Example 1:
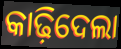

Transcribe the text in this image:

କାଢ଼ିଦେଲା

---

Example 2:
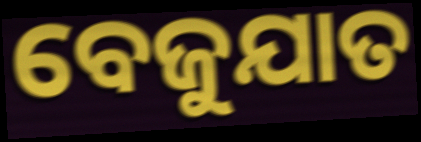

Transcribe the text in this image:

ବେଜୁଯାତ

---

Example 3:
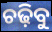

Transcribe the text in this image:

ଚଢ଼ିବୁ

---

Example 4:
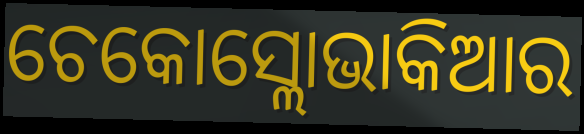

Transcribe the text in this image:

ଚେକୋସ୍ଲୋଭାକିଆର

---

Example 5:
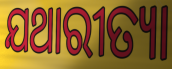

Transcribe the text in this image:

ଯଥାରୀତ୍ୟା